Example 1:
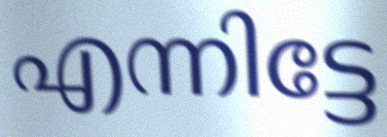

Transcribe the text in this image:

എന്നിട്ടേ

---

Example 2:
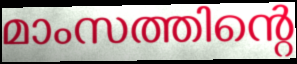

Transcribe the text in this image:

മാംസത്തിന്റെ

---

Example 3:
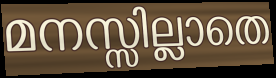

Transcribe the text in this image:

മനസ്സില്ലാതെ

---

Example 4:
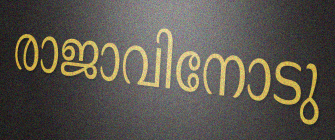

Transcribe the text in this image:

രാജാവിനോടു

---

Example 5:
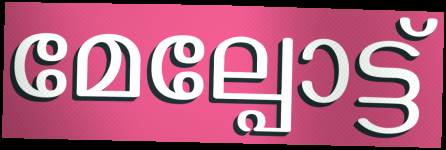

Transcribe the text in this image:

മേല്പോട്ട്